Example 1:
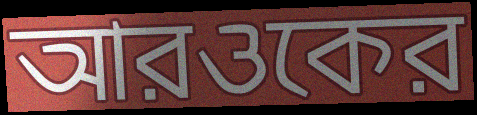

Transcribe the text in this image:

আরওকের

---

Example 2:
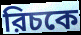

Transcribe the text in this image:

রিচকে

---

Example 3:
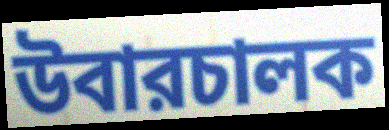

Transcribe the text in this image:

উবারচালক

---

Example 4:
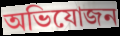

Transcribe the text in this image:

অভিযোজন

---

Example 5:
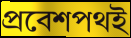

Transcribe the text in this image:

প্রবেশপথই